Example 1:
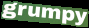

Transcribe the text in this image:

grumpy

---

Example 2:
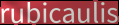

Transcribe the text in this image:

rubicaulis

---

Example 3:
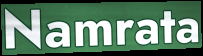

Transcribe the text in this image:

Namrata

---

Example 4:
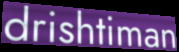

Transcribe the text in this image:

drishtiman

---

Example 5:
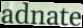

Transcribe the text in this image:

adnate